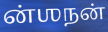
ன்ஶநன்